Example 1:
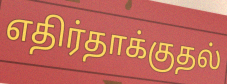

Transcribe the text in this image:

எதிர்தாக்குதல்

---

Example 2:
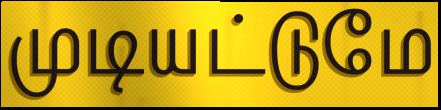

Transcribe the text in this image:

முடியட்டுமே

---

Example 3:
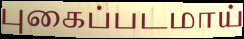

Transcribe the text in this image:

புகைப்படமாய்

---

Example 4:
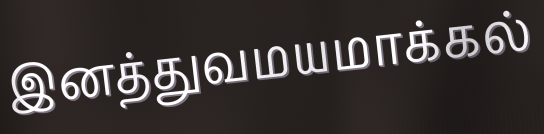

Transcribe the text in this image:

இனத்துவமயமாக்கல்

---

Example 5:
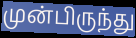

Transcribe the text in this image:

முன்பிருந்து